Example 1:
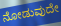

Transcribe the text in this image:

ನೋಡುವುದೇ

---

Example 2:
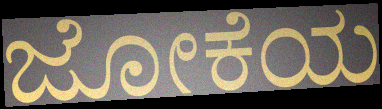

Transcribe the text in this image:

ಜೋಕೆಯ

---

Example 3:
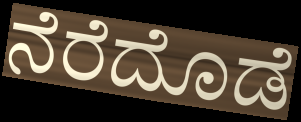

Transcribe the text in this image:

ನೆರೆದೊಡೆ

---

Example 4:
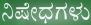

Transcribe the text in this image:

ನಿಷೇಧಗಳು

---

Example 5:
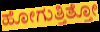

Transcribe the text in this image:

ಹೋಗುತ್ತಿತ್ತೋ